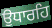
ਉਧਾਰਹਿ